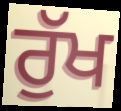
ਰੁੱਖ